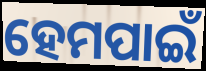
ହେମପାଇଁ